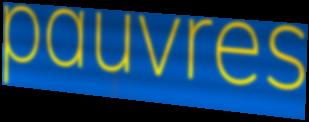
pauvres